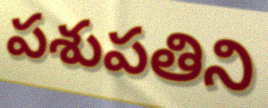
పశుపతిని